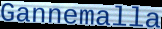
Gannemalla